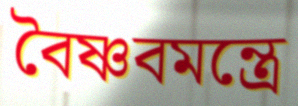
বৈষ্ণবমন্ত্রে